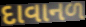
દાવાનળ